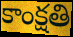
కాంక్షతి